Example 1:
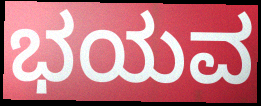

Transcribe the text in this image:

ಭಯವ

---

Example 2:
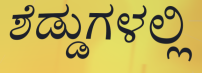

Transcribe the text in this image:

ಶೆಡ್ಡುಗಳಲ್ಲಿ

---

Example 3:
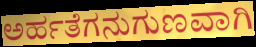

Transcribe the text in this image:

ಅರ್ಹತೆಗನುಗುಣವಾಗಿ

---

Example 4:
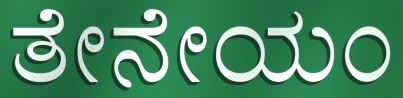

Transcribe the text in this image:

ತೇನೇಯಂ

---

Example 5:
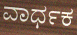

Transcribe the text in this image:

ವಾರ್ಧಕ